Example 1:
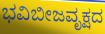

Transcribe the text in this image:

ಭವಿಬೀಜವೃಕ್ಷದ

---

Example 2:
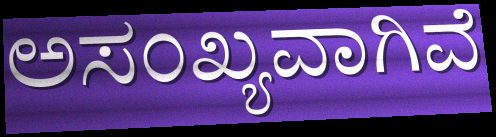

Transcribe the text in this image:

ಅಸಂಖ್ಯವಾಗಿವೆ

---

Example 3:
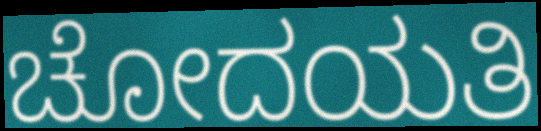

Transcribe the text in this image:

ಚೋದಯತಿ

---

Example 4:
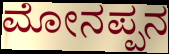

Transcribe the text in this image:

ಮೋನಪ್ಪನ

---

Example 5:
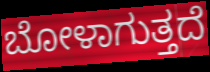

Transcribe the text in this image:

ಬೋಳಾಗುತ್ತದೆ